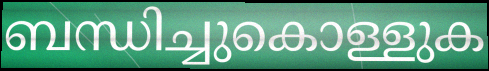
ബന്ധിച്ചുകൊള്ളുക